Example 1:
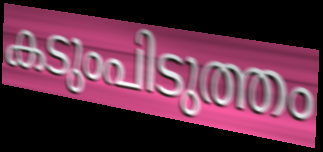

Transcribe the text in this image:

കടുംപിടുത്തം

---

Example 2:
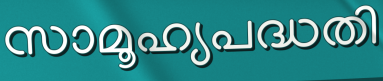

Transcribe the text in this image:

സാമൂഹ്യപദ്ധതി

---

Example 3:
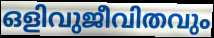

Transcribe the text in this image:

ഒളിവുജീവിതവും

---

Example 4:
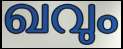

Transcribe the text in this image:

ഖവും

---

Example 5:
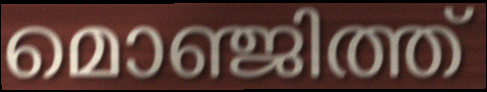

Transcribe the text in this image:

മൊഞ്ജിത്ത്